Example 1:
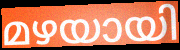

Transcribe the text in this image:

മഴയായി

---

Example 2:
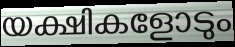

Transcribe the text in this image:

യക്ഷികളോടും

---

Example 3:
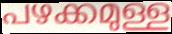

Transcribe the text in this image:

പഴക്കമുള്ള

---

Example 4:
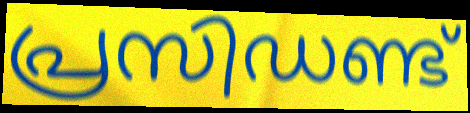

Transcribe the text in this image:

പ്രസിഡണ്ട്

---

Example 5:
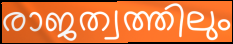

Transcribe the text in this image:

രാജത്വത്തിലും